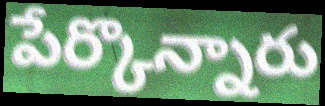
పేర్కొన్నారు